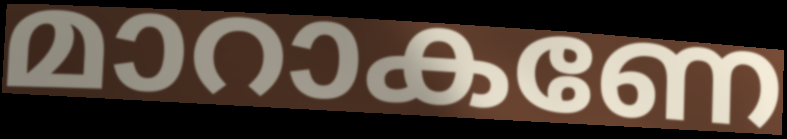
മാറാകണേ